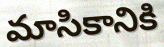
మాసికానికి